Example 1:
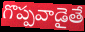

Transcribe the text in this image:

గొప్పవాడైతే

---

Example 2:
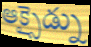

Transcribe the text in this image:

ఆక్సైడ్ను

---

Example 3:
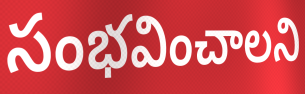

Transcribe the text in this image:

సంభవించాలని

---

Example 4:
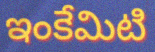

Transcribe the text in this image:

ఇంకేమిటి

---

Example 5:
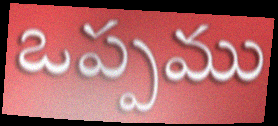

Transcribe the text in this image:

ఒప్పము